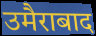
उमैराबाद